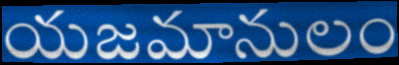
యజమానులం